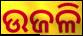
ଉଜଳି